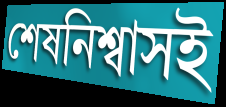
শেষনিশ্বাসই